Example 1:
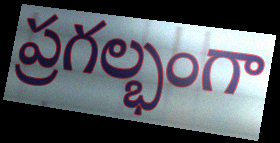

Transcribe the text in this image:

ప్రగల్భంగా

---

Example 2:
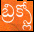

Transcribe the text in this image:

బ్రిక్స్లో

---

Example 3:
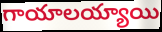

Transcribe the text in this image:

గాయాలయ్యాయి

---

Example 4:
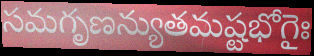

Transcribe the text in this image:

సమగృణన్యుతమష్టభోగైః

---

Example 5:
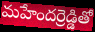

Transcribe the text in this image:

మహేందర్రెడ్డితో